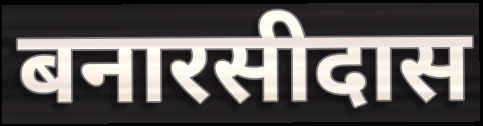
बनारसीदास